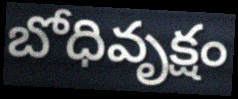
బోధివృక్షం